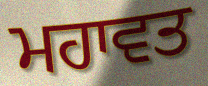
ਮਹਾਵਤ